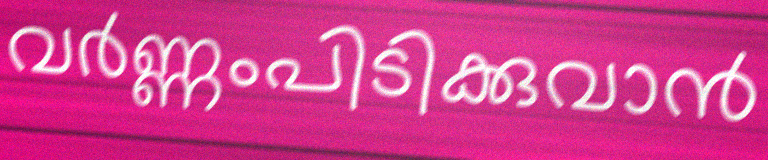
വർണ്ണംപിടിക്കുവാൻ